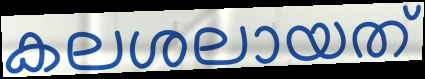
കലശലായത്